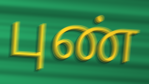
புண்